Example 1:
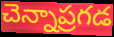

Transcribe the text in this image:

చెన్నాప్రగడ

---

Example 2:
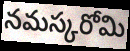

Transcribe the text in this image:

నమస్కరోమి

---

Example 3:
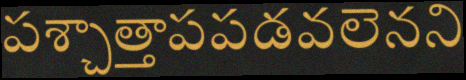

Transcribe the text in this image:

పశ్చాత్తాపపడవలెనని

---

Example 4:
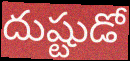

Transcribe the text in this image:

దుష్టుడో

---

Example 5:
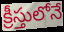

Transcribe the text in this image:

క్రీస్తులోనే